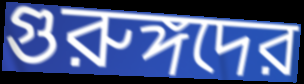
গুরুঙ্গদের